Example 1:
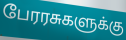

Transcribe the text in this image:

பேரரசுகளுக்கு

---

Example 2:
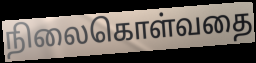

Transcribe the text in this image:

நிலைகொள்வதை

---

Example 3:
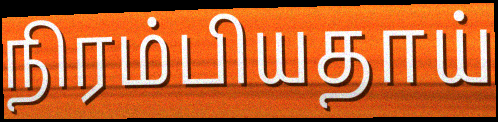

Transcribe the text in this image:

நிரம்பியதாய்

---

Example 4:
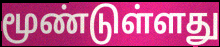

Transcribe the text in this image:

மூண்டுள்ளது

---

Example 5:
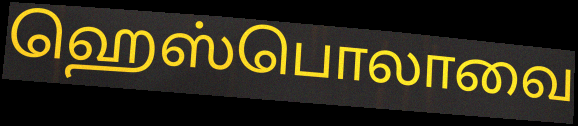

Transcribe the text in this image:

ஹெஸ்பொலாவை